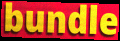
bundle